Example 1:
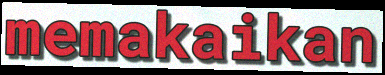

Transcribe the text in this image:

memakaikan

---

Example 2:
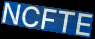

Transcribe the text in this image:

NCFTE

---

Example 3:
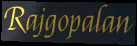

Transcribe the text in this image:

Rajgopalan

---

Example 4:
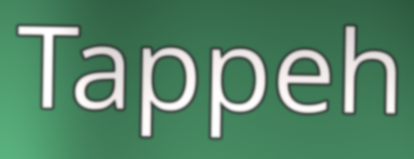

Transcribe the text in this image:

Tappeh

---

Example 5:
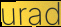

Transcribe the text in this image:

urad